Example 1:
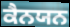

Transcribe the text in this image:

ਕੈਨਯਨ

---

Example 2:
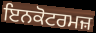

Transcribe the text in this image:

ਇਨਕੋਟਰਮਜ਼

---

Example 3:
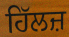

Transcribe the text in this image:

ਹਿੱਲਜ਼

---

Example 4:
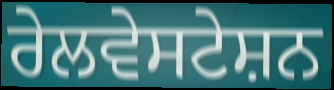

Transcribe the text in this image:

ਰੇਲਵੇਸਟੇਸ਼ਨ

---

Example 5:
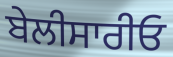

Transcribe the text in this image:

ਬੇਲੀਸਾਰੀਓ